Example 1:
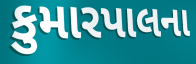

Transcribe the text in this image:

કુમારપાલના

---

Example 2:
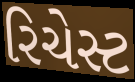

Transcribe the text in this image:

રિચેસ્ટ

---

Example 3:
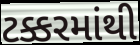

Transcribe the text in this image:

ટક્કરમાંથી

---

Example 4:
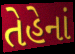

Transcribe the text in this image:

તેહેનાં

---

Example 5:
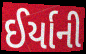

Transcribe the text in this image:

ઈર્યાની